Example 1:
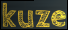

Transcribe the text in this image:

kuze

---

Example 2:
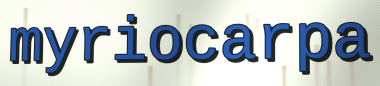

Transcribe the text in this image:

myriocarpa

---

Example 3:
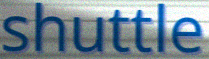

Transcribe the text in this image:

shuttle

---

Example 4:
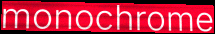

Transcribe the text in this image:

monochrome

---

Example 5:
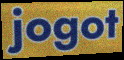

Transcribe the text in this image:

jogot